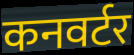
कनवर्टर